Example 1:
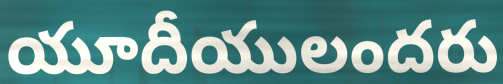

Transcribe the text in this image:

యూదీయులందరు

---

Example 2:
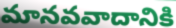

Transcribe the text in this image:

మానవవాదానికి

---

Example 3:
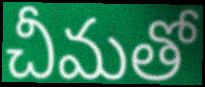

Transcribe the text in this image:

చీమతో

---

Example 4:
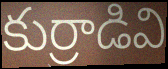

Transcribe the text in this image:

కుర్రాడివి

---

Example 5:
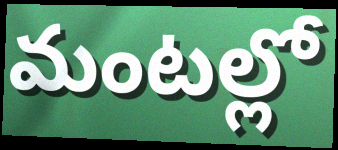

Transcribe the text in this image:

మంటల్లో